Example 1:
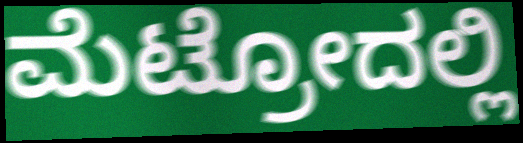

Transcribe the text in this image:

ಮೆಟ್ರೋದಲ್ಲಿ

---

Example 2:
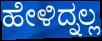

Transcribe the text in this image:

ಹೇಳಿದ್ನಲ್ಲ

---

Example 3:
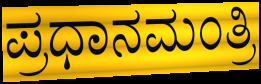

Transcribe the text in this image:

ಪ್ರಧಾನಮಂತ್ರಿ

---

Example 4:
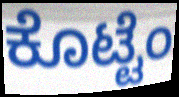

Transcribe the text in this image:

ಕೊಟ್ಟೆಂ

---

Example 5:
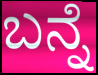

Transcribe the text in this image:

ಬನ್ನೆ